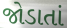
જોડાતાં